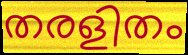
തരളിതം